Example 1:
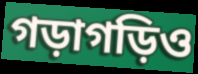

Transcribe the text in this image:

গড়াগড়িও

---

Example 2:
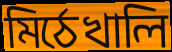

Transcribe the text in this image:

মিঠেখালি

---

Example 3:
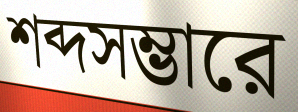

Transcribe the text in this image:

শব্দসম্ভারে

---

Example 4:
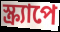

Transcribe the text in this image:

স্ক্র্যাপে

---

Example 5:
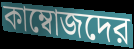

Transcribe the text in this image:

কাম্বোজদের